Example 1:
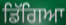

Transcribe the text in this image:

ਡਿੱਗਿਆ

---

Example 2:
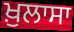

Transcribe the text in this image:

ਖ਼ੁਲਾਸਾ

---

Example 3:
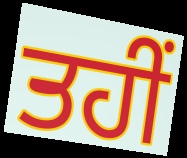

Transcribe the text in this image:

ਤਹੀਂ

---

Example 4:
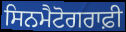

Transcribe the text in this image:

ਸਿਨਮੈਟੋਗਰਾਫ਼ੀ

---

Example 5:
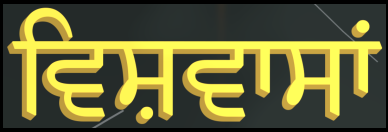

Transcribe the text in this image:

ਵਿਸ਼ਵਾਸਾਂ